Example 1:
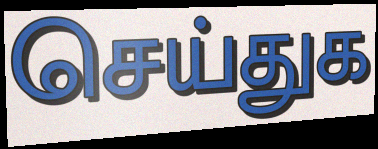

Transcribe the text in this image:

செய்துக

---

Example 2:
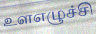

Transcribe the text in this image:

உளஎழுச்சி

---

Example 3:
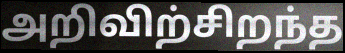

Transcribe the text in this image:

அறிவிற்சிறந்த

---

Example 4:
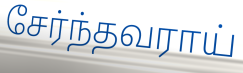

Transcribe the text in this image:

சேர்ந்தவராய்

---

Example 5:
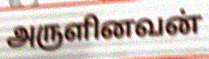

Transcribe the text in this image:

அருளினவன்